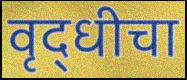
वृद्धीचा